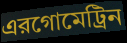
এরগোমেট্রিন